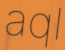
aql